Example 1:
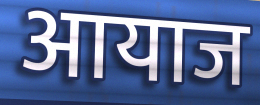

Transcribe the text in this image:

आयाज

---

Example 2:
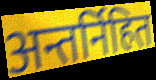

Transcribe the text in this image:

अन्तर्निहित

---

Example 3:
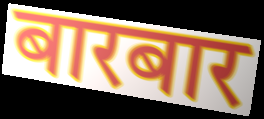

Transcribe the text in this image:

बारबार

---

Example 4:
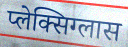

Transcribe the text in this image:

प्लेक्सिग्लास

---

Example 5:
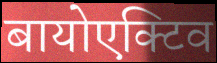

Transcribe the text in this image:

बायोएक्टिव